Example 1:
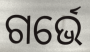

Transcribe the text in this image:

ଗର୍ଭେ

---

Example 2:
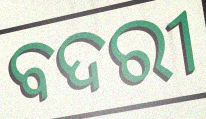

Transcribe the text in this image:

ବଦରୀ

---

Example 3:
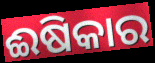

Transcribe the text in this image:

ଈଷିକାର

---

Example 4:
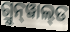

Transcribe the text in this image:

ଗ୍ରୁନ୍‌ୱାଲ୍‌ଡ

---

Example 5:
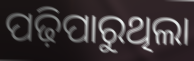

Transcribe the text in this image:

ପଢ଼ିପାରୁଥିଲା